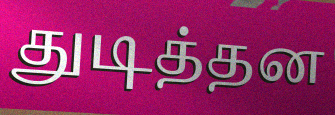
துடித்தன